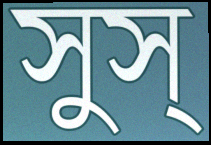
সুস্